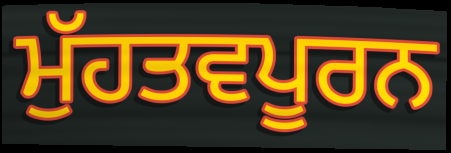
ਮੁੱਹਤਵਪੂਰਨ